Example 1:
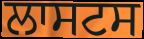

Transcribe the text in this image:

ਲਾਸਟਸ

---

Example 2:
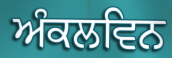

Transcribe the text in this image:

ਅੰਕਲਵਿਨ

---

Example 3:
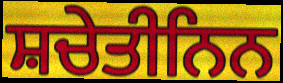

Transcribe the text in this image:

ਸ਼ਚੇਤੀਨਿਨ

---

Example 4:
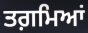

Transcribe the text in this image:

ਤਗ਼ਮਿਆਂ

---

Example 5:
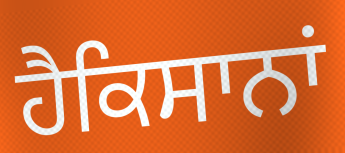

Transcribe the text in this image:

ਹੈਕਿਸਾਨਾਂ